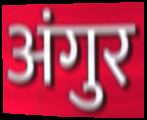
अंगुर